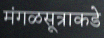
मंगळसूत्राकडे